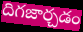
దిగజార్చడం